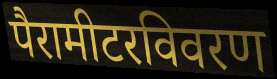
पैरामीटरविवरण